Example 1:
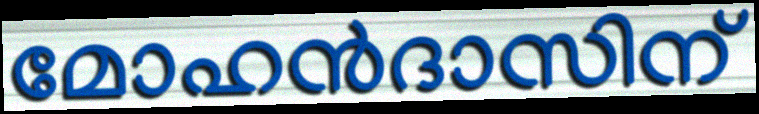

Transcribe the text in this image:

മോഹൻദാസിന്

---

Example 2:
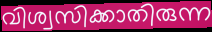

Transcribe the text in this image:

വിശ്വസിക്കാതിരുന്ന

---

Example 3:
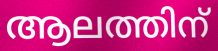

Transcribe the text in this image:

ആലത്തിന്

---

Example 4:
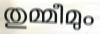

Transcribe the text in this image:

തുമ്മീമും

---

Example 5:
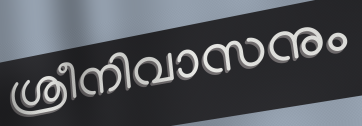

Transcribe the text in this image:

ശ്രീനിവാസനും